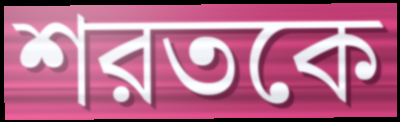
শরতকে